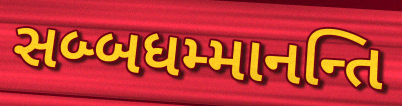
સબ્બધમ્માનન્તિ